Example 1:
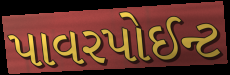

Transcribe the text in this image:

પાવરપોઈન્ટ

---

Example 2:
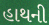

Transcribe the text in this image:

હાથની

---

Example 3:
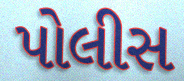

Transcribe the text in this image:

પોલીસ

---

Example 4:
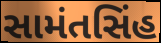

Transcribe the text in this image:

સામંતસિંહ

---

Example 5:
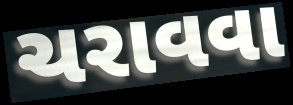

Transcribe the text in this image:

ચરાવવા